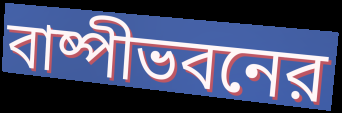
বাষ্পীভবনের